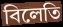
বিলেতি